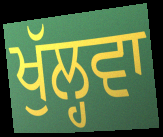
ਖੁੱਲ੍ਹਵਾ